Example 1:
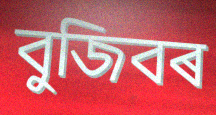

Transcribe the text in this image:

বুজিবৰ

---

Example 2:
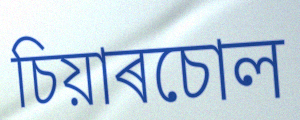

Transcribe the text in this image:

চিয়াৰচোল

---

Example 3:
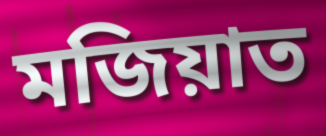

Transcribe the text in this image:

মজিয়াত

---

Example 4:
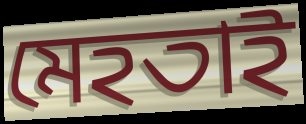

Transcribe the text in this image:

মেহতাই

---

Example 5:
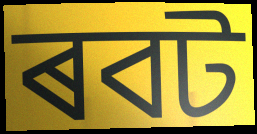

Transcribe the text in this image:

ৰবট